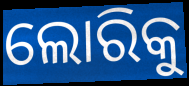
ଲୋରିକୁ